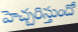
హెచ్చరిస్తుందో